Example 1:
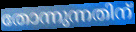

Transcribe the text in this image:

തോന്നുന്നതിന്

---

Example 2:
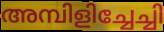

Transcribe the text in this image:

അമ്പിളിച്ചേച്ചി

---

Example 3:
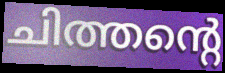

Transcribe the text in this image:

ചിത്തന്റെ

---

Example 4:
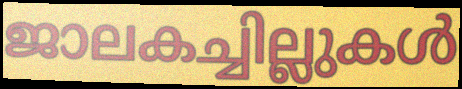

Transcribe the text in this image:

ജാലകച്ചില്ലുകൾ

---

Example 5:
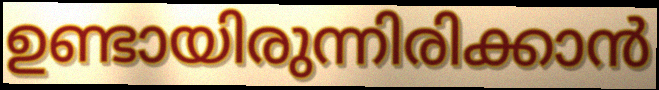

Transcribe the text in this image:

ഉണ്ടായിരുന്നിരിക്കാൻ